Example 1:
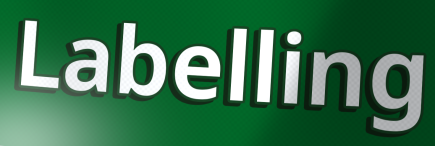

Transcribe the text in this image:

Labelling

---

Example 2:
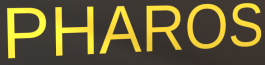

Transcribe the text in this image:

PHAROS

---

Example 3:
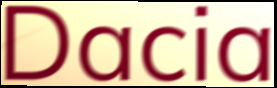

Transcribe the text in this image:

Dacia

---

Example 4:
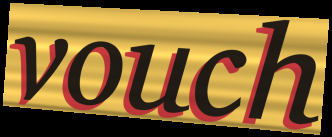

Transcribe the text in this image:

vouch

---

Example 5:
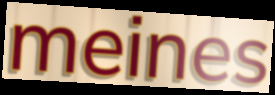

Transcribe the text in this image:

meines